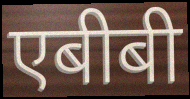
एबीबी